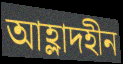
আহ্লাদহীন